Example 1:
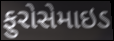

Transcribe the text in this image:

ફુરોસેમાઇડ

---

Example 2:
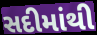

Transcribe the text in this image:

સદીમાંથી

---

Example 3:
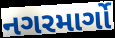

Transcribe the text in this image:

નગરમાર્ગો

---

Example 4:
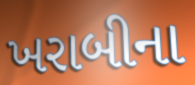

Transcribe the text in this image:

ખરાબીના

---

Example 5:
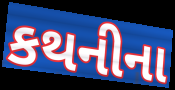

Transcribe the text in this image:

કથનીના